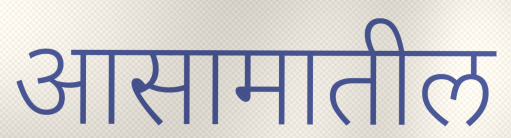
आसामातील